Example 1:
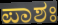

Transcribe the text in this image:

ಪಾಶಃ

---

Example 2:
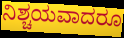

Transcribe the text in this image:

ನಿಶ್ಚಯವಾದರೂ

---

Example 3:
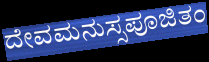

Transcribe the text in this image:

ದೇವಮನುಸ್ಸಪೂಜಿತಂ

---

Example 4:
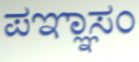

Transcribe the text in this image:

ಪಞ್ಞಾಸಂ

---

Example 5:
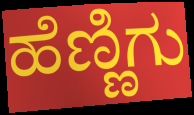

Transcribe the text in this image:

ಹೆಣ್ಣಿಗು